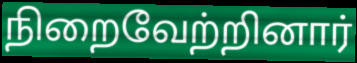
நிறைவேற்றினார்